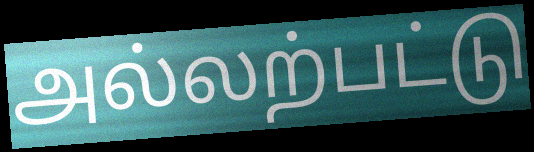
அல்லற்பட்டு